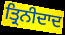
ਤ੍ਰਿਨੀਦਾਦ